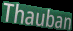
Thauban